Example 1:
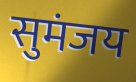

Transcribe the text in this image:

सुमंजय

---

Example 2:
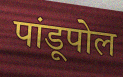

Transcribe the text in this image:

पांडूपोल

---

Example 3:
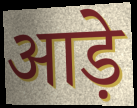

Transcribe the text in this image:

आड़े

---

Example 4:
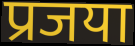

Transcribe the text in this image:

प्रजया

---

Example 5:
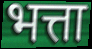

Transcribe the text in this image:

भत्ता